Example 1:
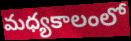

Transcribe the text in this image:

మధ్యకాలంలో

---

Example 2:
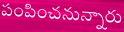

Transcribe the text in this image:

పంపించనున్నారు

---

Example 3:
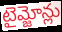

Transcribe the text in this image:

టైమ్జోన్లు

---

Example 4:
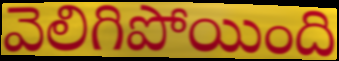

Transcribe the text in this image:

వెలిగిపోయింది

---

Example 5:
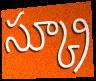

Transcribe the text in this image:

స్క్రూ